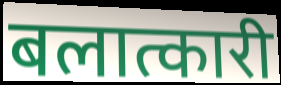
बलात्कारी